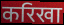
करिखा